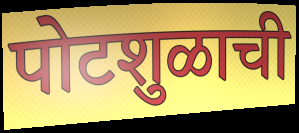
पोटशुळाची